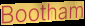
Bootham